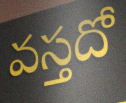
వస్తదో